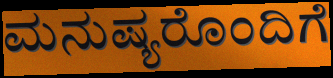
ಮನುಷ್ಯರೊಂದಿಗೆ